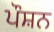
ਪੌਸ਼ਨ